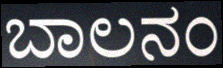
ಬಾಲನಂ